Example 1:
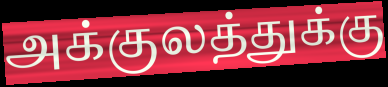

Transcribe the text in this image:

அக்குலத்துக்கு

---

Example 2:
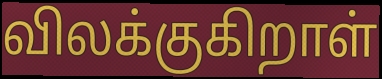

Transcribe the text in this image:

விலக்குகிறாள்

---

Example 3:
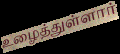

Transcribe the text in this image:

உழைத்துள்ளார்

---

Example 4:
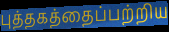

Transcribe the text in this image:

புத்தகத்தைப்பற்றிய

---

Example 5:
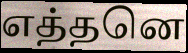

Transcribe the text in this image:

எத்தனெ